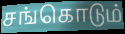
சங்கொடும்